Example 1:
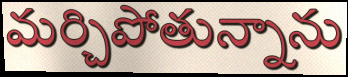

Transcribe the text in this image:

మర్చిపోతున్నాను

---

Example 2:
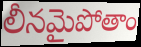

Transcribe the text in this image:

లీనమైపోతాం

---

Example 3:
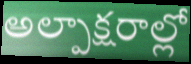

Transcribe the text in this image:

అల్పాక్షరాల్లో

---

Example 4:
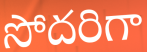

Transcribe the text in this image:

సోదరిగా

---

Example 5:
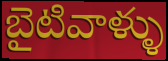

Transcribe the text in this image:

బైటివాళ్ళు